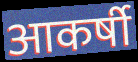
आकर्षी